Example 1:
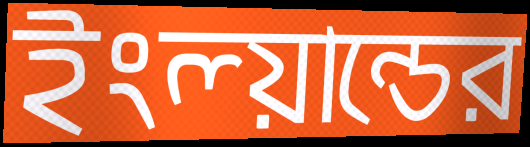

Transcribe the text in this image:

ইংল্য়ান্ডের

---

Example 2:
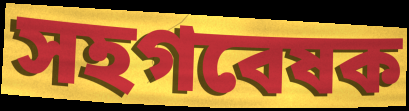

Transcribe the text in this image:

সহগবেষক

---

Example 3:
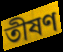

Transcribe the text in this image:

তীষণ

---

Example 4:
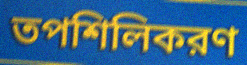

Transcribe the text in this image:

তপশিলিকরণ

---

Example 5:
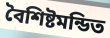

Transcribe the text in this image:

বৈশিষ্টমন্ডিত